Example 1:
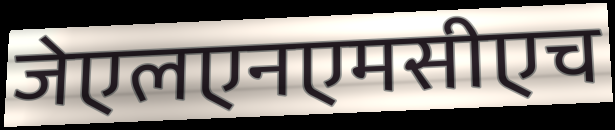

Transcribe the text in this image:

जेएलएनएमसीएच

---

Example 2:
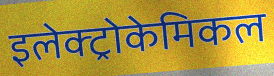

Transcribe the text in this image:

इलेक्ट्रोकेमिकल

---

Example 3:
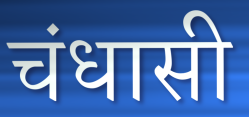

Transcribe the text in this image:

चंधासी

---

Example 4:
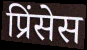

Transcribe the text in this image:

प्रिंसेस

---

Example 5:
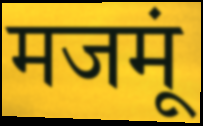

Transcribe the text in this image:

मजमूं